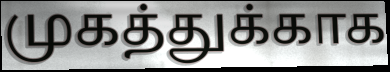
முகத்துக்காக